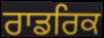
ਰਾਡਰਿਕ